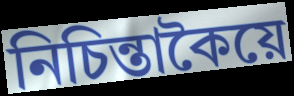
নিচিন্তাকৈয়ে